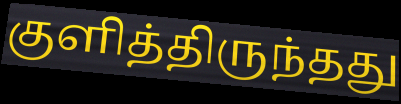
குளித்திருந்தது